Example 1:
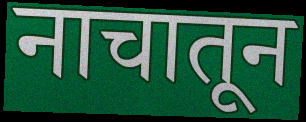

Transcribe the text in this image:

नाचातून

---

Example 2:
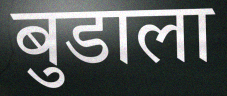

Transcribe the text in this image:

बुडाला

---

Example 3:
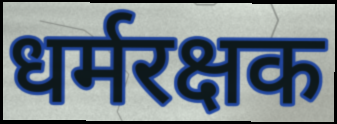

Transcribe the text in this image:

धर्मरक्षक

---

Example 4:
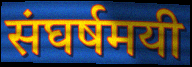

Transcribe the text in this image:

संघर्षमयी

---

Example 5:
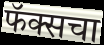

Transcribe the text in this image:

फॅक्सचा